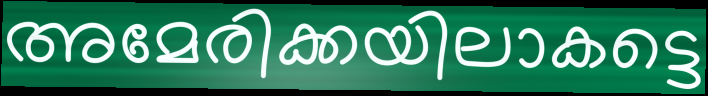
അമേരിക്കയിലാകട്ടെ